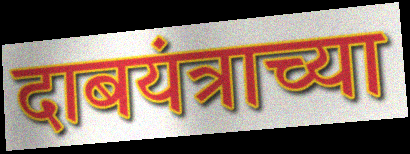
दाबयंत्राच्या